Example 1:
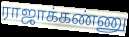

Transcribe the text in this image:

ராஜாக்கண்ணு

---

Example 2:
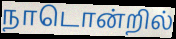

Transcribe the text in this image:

நாடொன்றில்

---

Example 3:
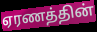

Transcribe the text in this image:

ஏரணத்தின்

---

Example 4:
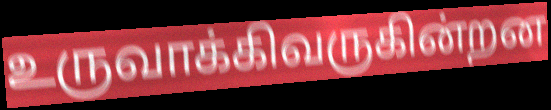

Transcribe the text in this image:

உருவாக்கிவருகின்றன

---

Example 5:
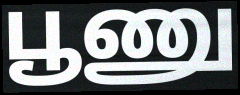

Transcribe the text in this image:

பூணு